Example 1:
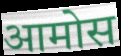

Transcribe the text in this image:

आमोस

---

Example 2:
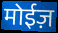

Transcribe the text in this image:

मोईज़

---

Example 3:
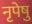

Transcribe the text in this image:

नृपेषु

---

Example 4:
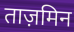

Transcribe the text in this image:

ताज़मिन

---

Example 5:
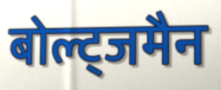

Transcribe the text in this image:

बोल्ट्जमैन